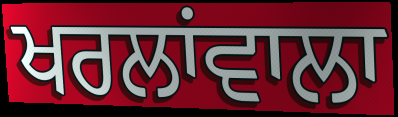
ਖਰਲਾਂਵਾਲਾ